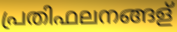
പ്രതിഫലനങ്ങള്